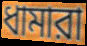
ধামারা